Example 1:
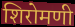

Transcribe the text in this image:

शिरोमणी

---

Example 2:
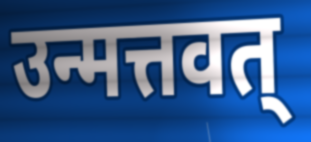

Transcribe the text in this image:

उन्मत्तवत्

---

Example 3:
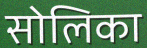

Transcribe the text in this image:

सोलिका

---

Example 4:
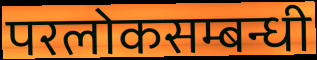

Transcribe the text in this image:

परलोकसम्बन्धी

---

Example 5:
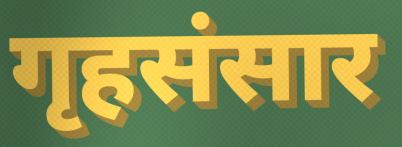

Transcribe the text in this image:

गृहसंसार